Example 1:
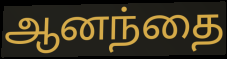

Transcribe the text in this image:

ஆனந்தை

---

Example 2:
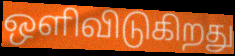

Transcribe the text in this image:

ஒளிவிடுகிறது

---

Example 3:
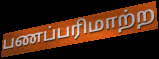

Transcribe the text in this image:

பணப்பரிமாற்ற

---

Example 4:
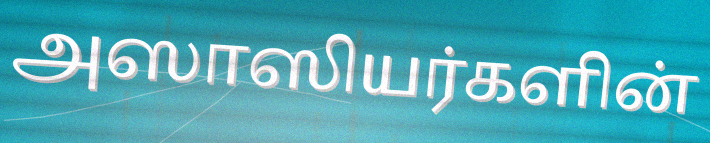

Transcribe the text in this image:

அஸாஸியர்களின்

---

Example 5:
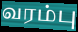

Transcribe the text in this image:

வரம்பு